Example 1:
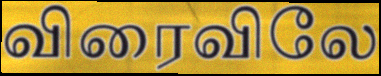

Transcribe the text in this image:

விரைவிலே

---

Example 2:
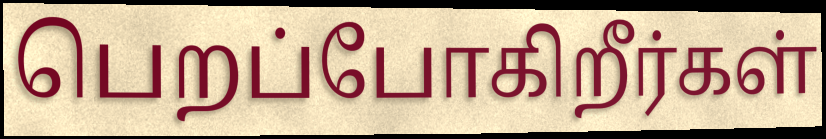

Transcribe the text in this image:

பெறப்போகிறீர்கள்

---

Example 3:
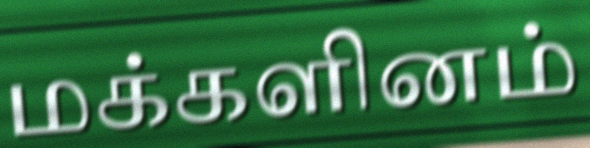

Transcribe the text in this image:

மக்களினம்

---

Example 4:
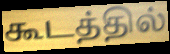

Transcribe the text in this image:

கூடத்தில்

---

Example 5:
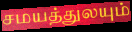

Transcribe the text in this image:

சமயத்துலயும்